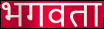
भगवता